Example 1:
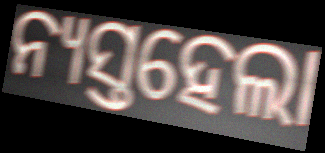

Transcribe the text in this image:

ନ୍ୟସ୍ତହେଲା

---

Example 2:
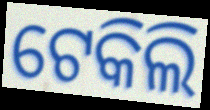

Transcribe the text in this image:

ଟେକିଲି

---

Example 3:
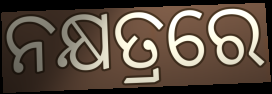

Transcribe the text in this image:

ନକ୍ଷତ୍ରରେ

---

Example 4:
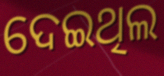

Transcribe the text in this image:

ଦେଇଥିଲ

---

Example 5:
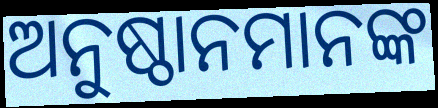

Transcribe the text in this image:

ଅନୁଷ୍ଠାନମାନଙ୍କ